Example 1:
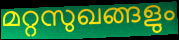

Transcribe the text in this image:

മറ്റസുഖങ്ങളും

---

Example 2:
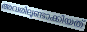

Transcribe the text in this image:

അവരിലുണ്ടാക്കിയത്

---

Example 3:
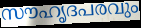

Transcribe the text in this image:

സൗഹൃദപരവും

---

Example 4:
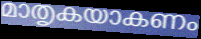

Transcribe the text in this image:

മാതൃകയാകണം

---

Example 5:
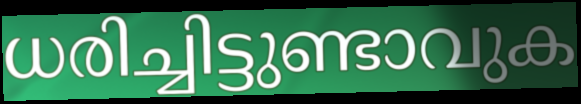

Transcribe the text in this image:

ധരിച്ചിട്ടുണ്ടാവുക